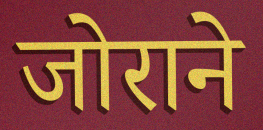
जोराने